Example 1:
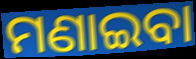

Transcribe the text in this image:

ମଣାଇବା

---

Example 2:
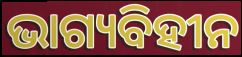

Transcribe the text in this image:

ଭାଗ୍ୟବିହୀନ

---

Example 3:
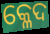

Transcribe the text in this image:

କ୍ଳେଦ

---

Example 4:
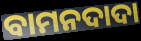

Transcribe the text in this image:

ବାମନଦାଦା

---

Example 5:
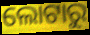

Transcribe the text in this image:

ଲୋଟାରୁ